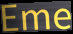
Eme